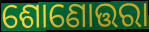
ଶୋଣୋତ୍ତରା